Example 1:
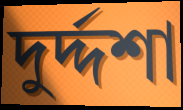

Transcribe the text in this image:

দুর্দ্দশা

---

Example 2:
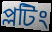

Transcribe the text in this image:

প্লটিং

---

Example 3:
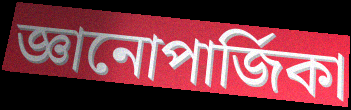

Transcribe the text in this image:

জ্ঞানোপার্জিকা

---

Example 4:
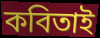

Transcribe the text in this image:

কবিতাই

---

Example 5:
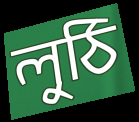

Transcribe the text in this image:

লুঠি